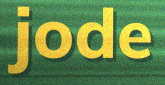
jode